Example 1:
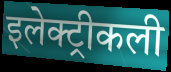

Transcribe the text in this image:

इलेक्ट्रीकली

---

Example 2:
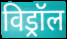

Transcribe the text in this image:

विड्रॉल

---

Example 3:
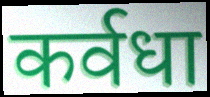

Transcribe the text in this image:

कर्वधा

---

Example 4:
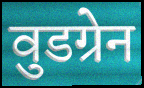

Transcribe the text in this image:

वुडग्रेन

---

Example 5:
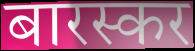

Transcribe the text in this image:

बारस्कर